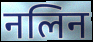
नलिन